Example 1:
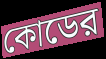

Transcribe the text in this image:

কোডের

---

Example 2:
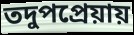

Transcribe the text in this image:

তদুপপ্রেয়ায়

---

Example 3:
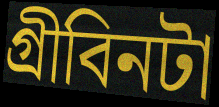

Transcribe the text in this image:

গ্রীবিনটা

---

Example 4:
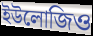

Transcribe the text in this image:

ইউলোজিও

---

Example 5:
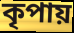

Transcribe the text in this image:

কৃপায়